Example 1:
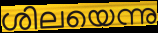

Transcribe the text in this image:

ശിലയെന്നു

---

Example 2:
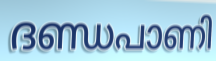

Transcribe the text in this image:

ദണ്ഡപാണി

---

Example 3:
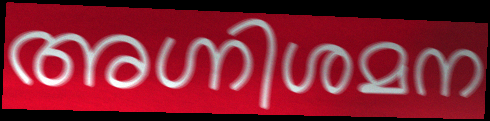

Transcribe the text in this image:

അഗ്നിശമന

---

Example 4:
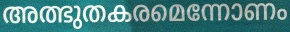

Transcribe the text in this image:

അത്ഭുതകരമെന്നോണം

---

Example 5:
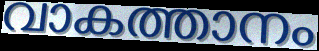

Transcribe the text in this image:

വാകത്താനം